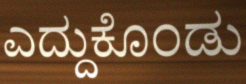
ಎದ್ದುಕೊಂಡು